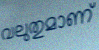
വലുതുമാണ്